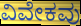
ವಿವೇಕವು